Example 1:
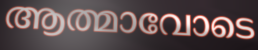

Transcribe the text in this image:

ആത്മാവോടെ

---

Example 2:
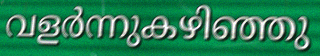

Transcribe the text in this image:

വളർന്നുകഴിഞ്ഞു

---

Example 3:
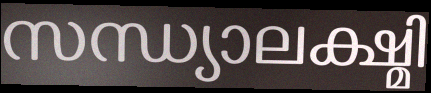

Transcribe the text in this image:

സന്ധ്യാലക്ഷ്മി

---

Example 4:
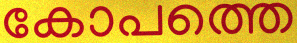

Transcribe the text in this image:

കോപത്തെ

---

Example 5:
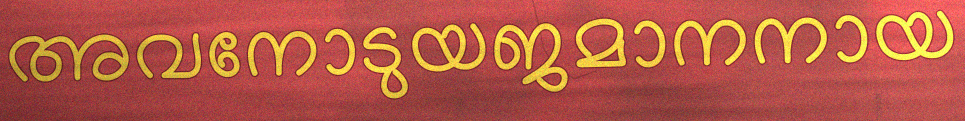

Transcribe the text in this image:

അവനോടുയജമാനനായ